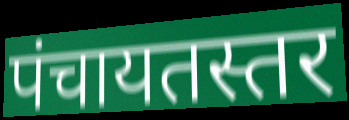
पंचायतस्तर